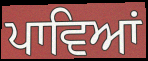
ਪਾਵਿਆਂ